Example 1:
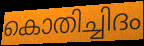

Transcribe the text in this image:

കൊതിച്ചിദം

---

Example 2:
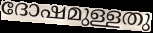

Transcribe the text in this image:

ദോഷമുള്ളതു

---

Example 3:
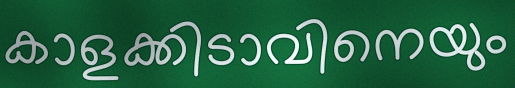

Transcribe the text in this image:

കാളക്കിടാവിനെയും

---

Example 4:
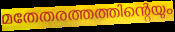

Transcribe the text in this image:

മതേതരത്തത്തിന്റെയും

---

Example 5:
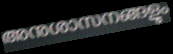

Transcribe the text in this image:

അനുശാസനങ്ങളും